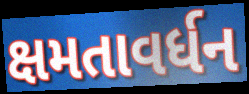
ક્ષમતાવર્ધન